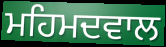
ਮਹਿਮਦਵਾਲ